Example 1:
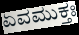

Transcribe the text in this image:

ಏವಮುಕ್ತಃ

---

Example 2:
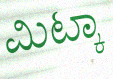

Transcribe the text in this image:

ಮಿಟ್ಕಾ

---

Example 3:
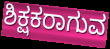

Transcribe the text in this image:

ಶಿಕ್ಷಕರಾಗುವ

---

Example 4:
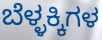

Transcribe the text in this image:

ಬೆಳ್ಳಕ್ಕಿಗಳ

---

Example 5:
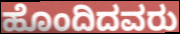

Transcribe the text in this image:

ಹೊಂದಿದವರು